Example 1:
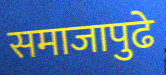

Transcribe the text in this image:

समाजापुढे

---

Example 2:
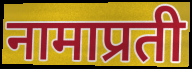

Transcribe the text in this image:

नामाप्रती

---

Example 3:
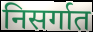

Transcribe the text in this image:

निसर्गात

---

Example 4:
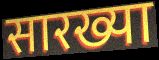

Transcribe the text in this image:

सारख्या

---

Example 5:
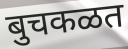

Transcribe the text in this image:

बुचकळत